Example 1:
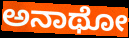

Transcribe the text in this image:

ಅನಾಥೋ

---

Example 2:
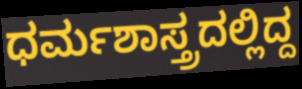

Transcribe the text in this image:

ಧರ್ಮಶಾಸ್ತ್ರದಲ್ಲಿದ್ದ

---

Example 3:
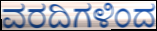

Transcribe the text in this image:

ವರದಿಗಳಿಂದ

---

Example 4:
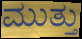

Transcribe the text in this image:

ಮುತ್ತು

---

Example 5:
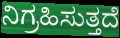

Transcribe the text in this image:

ನಿಗ್ರಹಿಸುತ್ತದೆ